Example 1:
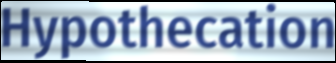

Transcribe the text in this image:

Hypothecation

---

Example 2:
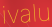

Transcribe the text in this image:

ivalu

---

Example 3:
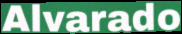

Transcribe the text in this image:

Alvarado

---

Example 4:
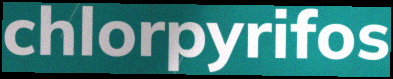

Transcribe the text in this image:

chlorpyrifos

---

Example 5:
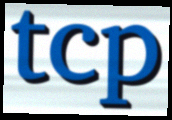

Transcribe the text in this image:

tcp